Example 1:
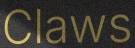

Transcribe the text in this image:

Claws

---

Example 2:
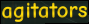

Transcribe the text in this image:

agitators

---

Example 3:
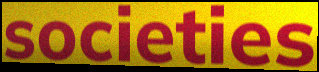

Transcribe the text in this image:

societies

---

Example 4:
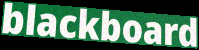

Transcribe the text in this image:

blackboard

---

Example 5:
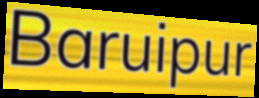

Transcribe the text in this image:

Baruipur